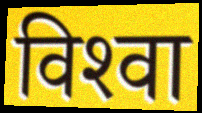
विश्‍वा